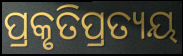
ପ୍ରକୃତିପ୍ରତ୍ୟୟ